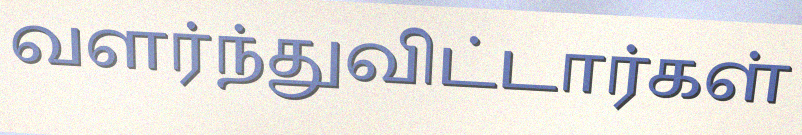
வளர்ந்துவிட்டார்கள்